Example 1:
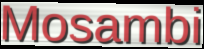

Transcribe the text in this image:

Mosambi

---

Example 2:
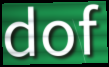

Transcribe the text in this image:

dof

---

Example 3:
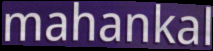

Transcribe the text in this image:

mahankal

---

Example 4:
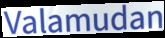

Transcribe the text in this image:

Valamudan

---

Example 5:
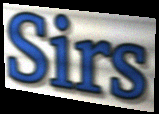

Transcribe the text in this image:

Sirs